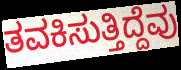
ತವಕಿಸುತ್ತಿದ್ದೆವು